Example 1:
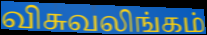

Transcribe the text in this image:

விசுவலிங்கம்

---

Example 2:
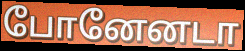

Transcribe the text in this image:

போனேனடா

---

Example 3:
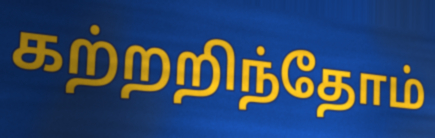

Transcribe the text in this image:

கற்றறிந்தோம்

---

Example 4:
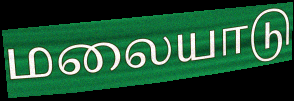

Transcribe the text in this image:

மலையாடு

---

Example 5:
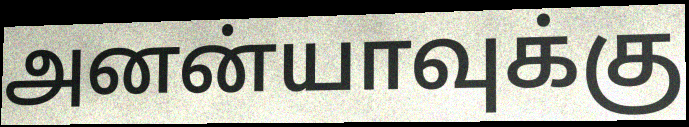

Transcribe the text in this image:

அனன்யாவுக்கு